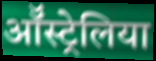
ऑॅस्ट्रेलिया